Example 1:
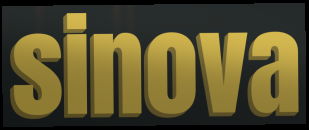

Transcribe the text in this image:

sinova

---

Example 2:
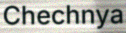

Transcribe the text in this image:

Chechnya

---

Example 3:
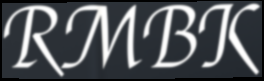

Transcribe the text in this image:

RMBK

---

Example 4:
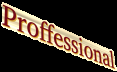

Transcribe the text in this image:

Proffessional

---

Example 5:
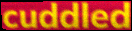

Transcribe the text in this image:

cuddled